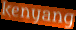
kenyang